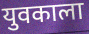
युवकाला